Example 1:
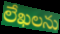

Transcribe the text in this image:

లేఖలను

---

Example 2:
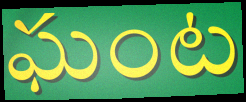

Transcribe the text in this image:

ఘంట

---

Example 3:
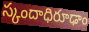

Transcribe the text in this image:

స్కందాధిరూఢాం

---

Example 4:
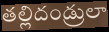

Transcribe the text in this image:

తల్లిదండ్రులా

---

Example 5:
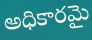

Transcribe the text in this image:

అధికారమై